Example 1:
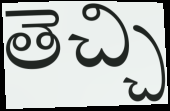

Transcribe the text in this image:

తెచ్చి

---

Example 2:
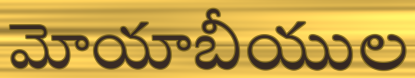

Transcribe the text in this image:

మోయాబీయుల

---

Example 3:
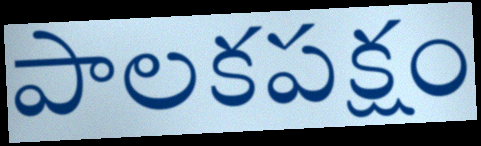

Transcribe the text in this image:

పాలకపక్షం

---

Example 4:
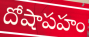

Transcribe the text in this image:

దోషాపహం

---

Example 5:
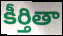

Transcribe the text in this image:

కీర్తితా